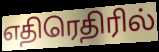
எதிரெதிரில்